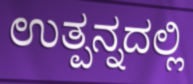
ಉತ್ಪನ್ನದಲ್ಲಿ